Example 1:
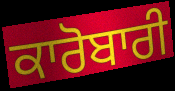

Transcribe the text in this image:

ਕਾਰੋਬਾਰੀ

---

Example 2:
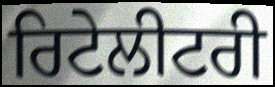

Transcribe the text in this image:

ਰਿਟੇਲੀਟਰੀ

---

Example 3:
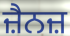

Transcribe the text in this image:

ਜ਼ੈਨਜ਼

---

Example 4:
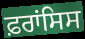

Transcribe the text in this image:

ਫ਼ਰਾਂਸਿਸ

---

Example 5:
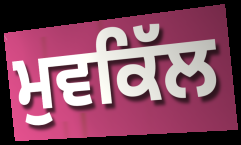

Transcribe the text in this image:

ਮੁਵਕਿੱਲ